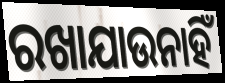
ରଖାଯାଉନାହିଁ